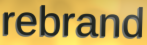
rebrand